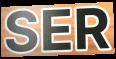
SER